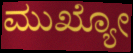
ಮುಖ್ಯೋ